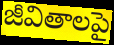
జీవితాలపై